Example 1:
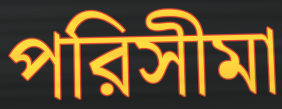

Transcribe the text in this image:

পরিসীমা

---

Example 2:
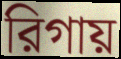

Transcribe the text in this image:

রিগায়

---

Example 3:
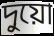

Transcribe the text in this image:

দুয়ো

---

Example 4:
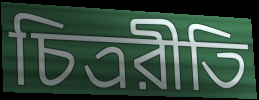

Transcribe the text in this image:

চিত্ররীতি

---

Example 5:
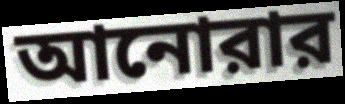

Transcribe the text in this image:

আনোরার